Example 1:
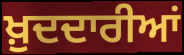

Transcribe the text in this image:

ਖ਼ੁਦਦਾਰੀਆਂ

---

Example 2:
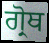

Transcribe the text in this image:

ਗ੍ਰੋਥ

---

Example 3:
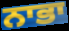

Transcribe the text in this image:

ਨਾਭਾ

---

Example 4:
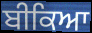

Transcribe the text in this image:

ਬੀਕਿਆ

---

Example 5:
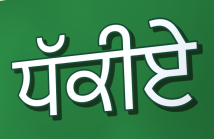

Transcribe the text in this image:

ਧੱਕੀਏ